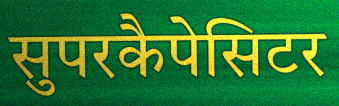
सुपरकैपेसिटर